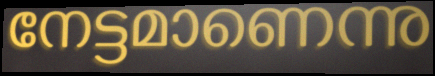
നേട്ടമാണെന്നു